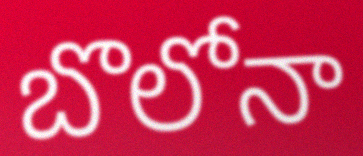
బొలోనా